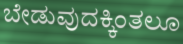
ಬೇಡುವುದಕ್ಕಿಂತಲೂ